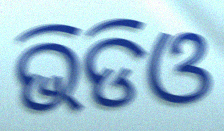
ଭିଡିଓ